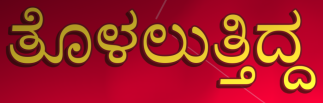
ತೊಳಲುತ್ತಿದ್ದ